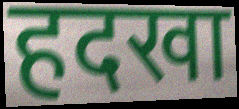
हदखा